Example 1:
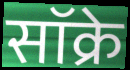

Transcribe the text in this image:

सॉक्रे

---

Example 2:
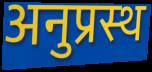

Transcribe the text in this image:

अनुप्रस्थ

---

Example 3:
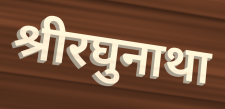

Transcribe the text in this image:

श्रीरघुनाथा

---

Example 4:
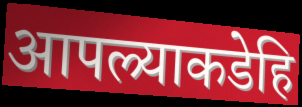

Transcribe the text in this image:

आपल्याकडेहि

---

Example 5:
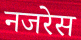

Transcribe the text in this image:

नजरेस